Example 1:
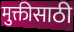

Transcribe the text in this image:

मुक्तीसाठी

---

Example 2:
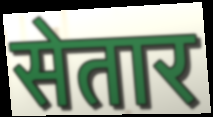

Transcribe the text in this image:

सेतार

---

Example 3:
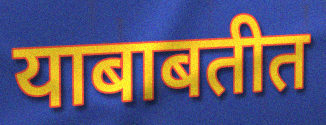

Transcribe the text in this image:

याबाबतीत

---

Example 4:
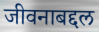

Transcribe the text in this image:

जीवनाबद्दल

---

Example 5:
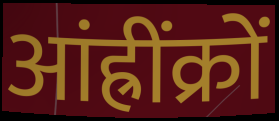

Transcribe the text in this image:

आंह्रींक्रों